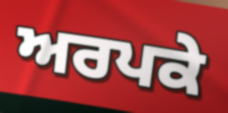
ਅਰਪਕੇ